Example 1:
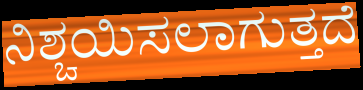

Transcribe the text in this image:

ನಿಶ್ಚಯಿಸಲಾಗುತ್ತದೆ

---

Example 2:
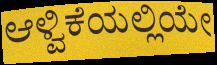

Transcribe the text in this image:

ಆಳ್ವಿಕೆಯಲ್ಲಿಯೇ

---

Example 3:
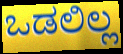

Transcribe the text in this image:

ಒಡಲಿಲ್ಲ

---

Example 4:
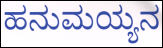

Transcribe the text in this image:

ಹನುಮಯ್ಯನ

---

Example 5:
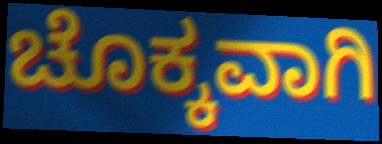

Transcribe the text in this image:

ಚೊಕ್ಕವಾಗಿ